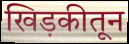
खिड़कीतून